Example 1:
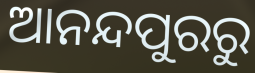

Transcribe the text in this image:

ଆନନ୍ଦପୁରରୁ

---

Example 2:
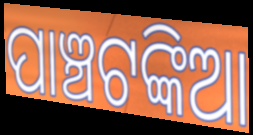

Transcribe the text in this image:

ପାଞ୍ଚଟଙ୍କିଆ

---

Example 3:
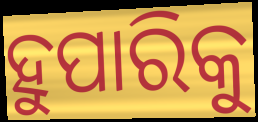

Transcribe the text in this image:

ହୁପାରିକୁ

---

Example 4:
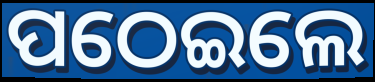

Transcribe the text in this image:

ପଠେଇଲେ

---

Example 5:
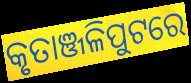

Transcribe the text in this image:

କୃତାଞ୍ଜଳିପୁଟରେ